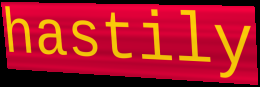
hastily